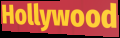
Hollywood